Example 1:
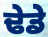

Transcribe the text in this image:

ਢੇਡੇ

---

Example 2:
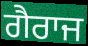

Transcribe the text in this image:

ਗੈਰਾਜ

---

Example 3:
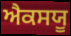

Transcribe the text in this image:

ਐਕਸਯੂ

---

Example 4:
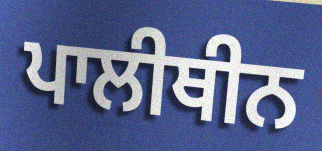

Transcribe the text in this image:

ਪਾਲੀਥੀਨ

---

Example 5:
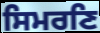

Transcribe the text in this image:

ਸਿਮਰਣਿ